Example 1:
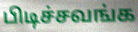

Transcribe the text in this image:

பிடிச்சவங்க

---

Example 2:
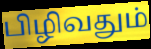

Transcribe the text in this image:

பிழிவதும்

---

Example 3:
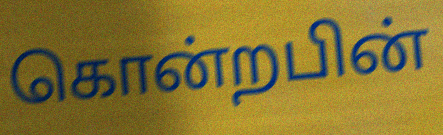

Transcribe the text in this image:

கொன்றபின்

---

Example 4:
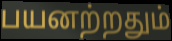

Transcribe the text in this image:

பயனற்றதும்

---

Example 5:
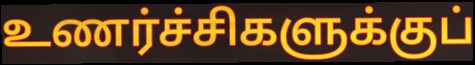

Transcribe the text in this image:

உணர்ச்சிகளுக்குப்